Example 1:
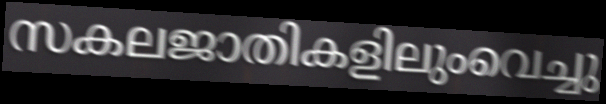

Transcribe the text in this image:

സകലജാതികളിലുംവെച്ചു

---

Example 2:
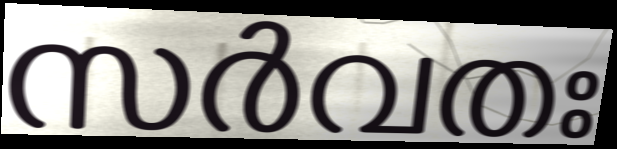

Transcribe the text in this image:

സർവതഃ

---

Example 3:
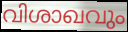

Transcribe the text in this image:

വിശാഖവും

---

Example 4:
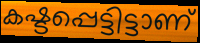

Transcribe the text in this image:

കഷ്ടപ്പെട്ടിട്ടാണ്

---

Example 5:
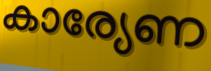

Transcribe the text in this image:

കാര്യേണ